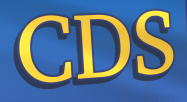
CDS